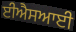
ਈਐਸਆਈ